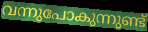
വന്നുപോകുന്നുണ്ട്